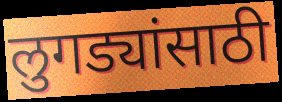
लुगड्यांसाठी